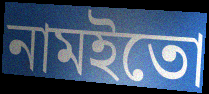
নামইতো